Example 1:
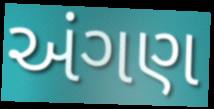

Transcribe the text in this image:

અંગણ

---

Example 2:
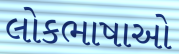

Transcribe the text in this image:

લોકભાષાઓ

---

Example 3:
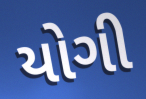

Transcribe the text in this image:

યોગી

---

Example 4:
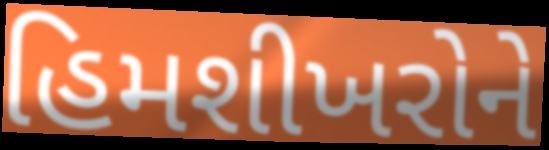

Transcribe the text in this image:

હિમશીખરોને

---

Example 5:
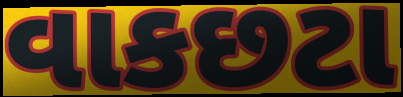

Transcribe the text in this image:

વાકછટા